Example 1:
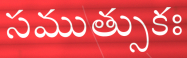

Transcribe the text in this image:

సముత్సుకః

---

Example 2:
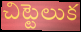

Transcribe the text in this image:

చిట్టెలుక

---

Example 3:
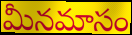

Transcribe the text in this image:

మీనమాసం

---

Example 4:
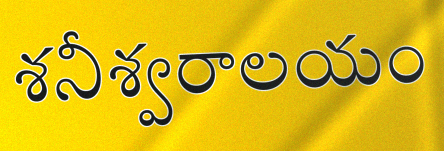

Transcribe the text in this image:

శనీశ్వరాలయం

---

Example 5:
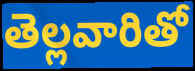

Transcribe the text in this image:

తెల్లవారితో